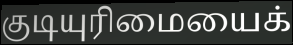
குடியுரிமையைக்